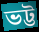
ভট্ট